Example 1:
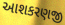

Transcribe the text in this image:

આશકરણજી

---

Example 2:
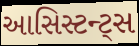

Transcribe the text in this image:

આસિસ્ટન્ટ્સ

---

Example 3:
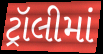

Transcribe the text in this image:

ટ્રૉલીમાં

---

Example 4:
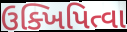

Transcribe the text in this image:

ઉક્ખિપિત્વા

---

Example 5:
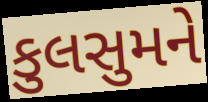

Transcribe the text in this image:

કુલસુમને